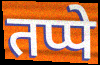
तप्पे